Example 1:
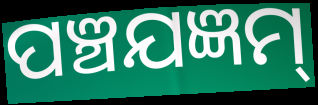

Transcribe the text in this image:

ପଞ୍ଚଯଜ୍ଞମ୍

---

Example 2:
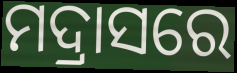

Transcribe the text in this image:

ମଦ୍ରାସରେ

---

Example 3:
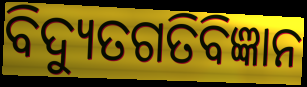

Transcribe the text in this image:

ବିଦ୍ୟୁତଗତିବିଜ୍ଞାନ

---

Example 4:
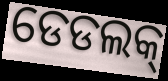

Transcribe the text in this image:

ଡେଡଲକ୍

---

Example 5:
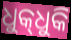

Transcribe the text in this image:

ଧୁକ୍‌ଧୁକି